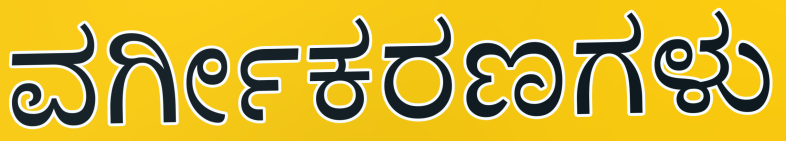
ವರ್ಗೀಕರಣಗಳು